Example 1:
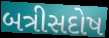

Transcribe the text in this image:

બત્રીસદોષ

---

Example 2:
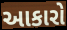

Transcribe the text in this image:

આકારો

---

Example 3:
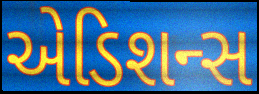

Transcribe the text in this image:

એડિશન્સ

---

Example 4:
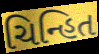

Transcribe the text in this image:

ચિન્હિત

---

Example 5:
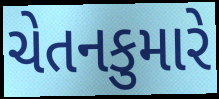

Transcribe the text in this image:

ચેતનકુમારે